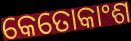
କେତୋକାଂଶ